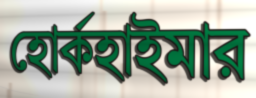
হোর্কহাইমার